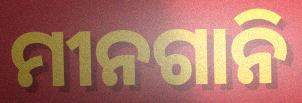
ମୀନଗାନି